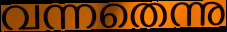
വന്നതെന്നു